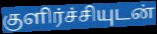
குளிர்ச்சியுடன்